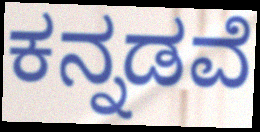
ಕನ್ನಡವೆ